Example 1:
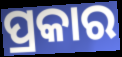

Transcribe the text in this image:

ପ୍ରକାର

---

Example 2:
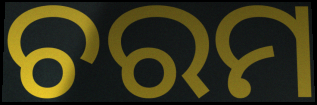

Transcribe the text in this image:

ଚରମ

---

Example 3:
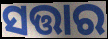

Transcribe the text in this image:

ସତ୍ତାର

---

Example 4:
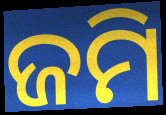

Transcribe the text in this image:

ଜମି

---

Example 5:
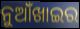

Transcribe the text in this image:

ନୁଆଁଖାଇର